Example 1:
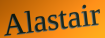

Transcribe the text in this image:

Alastair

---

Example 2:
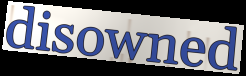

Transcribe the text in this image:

disowned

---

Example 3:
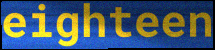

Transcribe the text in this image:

eighteen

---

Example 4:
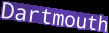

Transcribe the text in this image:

Dartmouth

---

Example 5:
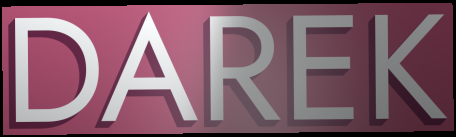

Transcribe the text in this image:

DAREK